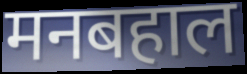
मनबहाल